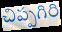
చిప్పగిరి